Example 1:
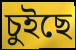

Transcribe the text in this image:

চুইছে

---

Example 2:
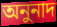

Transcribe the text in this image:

অনুনাদ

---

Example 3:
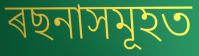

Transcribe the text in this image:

ৰছনাসমূহত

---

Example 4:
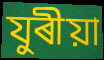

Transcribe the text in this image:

যুৰীয়া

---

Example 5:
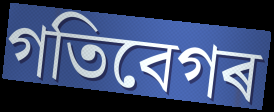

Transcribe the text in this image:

গতিবেগৰ